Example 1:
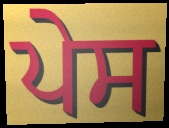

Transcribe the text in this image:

ਪੇਸ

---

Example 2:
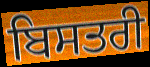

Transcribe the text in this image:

ਬਿਸਤਰੀ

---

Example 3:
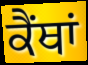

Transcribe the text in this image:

ਕੈਂਥਾਂ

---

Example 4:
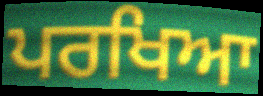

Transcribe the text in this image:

ਪਰਖਿਆ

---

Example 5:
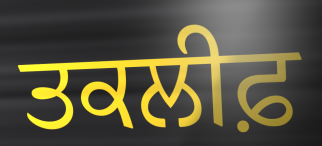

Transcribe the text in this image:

ਤਕਲੀਫ਼